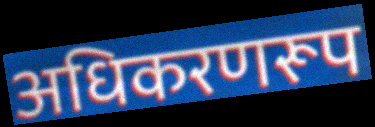
अधिकरणरूप